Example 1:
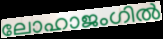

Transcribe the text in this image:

ലോഹാജംഗിൽ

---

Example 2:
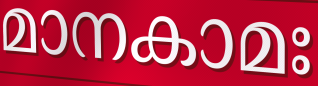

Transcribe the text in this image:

മാനകാമഃ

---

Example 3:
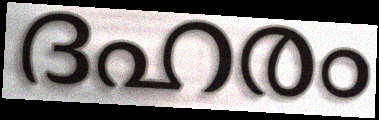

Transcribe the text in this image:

ദഹരം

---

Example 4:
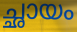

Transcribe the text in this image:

ച്ഛായം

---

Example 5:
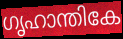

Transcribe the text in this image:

ഗൃഹാന്തികേ